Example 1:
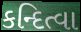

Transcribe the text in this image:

કન્દિત્વા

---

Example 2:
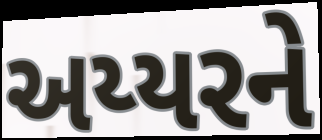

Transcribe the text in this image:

અય્યરને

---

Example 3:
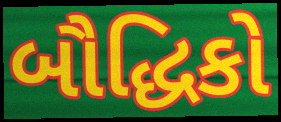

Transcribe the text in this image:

બૌદ્ધિકો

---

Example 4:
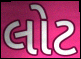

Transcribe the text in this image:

લોટ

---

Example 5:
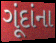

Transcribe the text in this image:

ગૂંદાંના